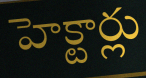
హెక్టార్లు